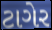
ટાગેર